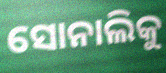
ସୋନାଲିକୁ